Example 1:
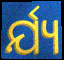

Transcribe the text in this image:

ର୍ଯ୍ୟ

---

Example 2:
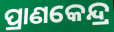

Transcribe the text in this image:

ପ୍ରାଣକେନ୍ଦ୍ର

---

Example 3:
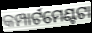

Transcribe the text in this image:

କମ୍ପାର୍ଟମେଣ୍ଟଟା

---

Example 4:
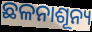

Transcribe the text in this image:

ଛଳନାଶୂନ୍ୟ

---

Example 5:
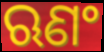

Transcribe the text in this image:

ଋଣଂ